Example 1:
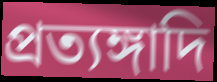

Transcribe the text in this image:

প্রত্যঙ্গাদি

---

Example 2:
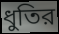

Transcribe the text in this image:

ধুতির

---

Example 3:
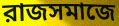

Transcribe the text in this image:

রাজসমাজে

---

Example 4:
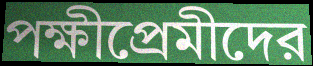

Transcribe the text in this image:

পক্ষীপ্রেমীদের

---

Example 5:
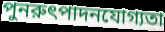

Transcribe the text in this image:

পুনরুৎপাদনযোগ্যতা